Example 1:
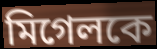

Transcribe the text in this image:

মিগেলকে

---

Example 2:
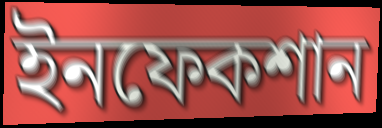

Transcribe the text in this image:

ইনফেকশান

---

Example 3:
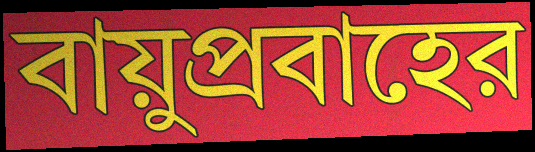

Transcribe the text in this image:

বায়ুপ্রবাহের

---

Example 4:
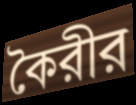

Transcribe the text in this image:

কৈরীর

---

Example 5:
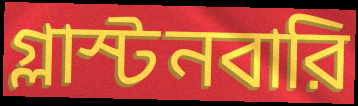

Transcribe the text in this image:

গ্লাস্টনবারি